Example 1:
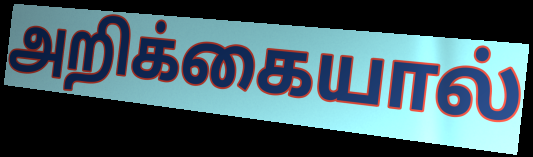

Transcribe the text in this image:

அறிக்கையால்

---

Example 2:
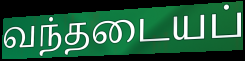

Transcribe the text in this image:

வந்தடையப்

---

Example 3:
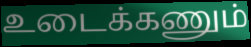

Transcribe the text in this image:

உடைக்கணும்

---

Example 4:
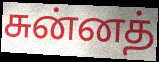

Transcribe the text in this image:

சுன்னத்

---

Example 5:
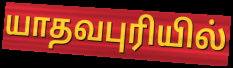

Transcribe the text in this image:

யாதவபுரியில்